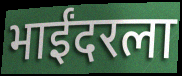
भाईंदरला